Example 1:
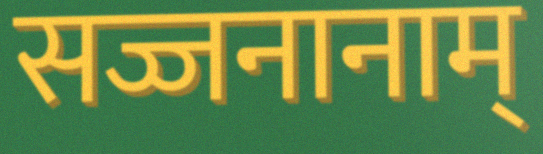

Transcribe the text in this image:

सज्जनानाम्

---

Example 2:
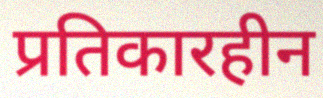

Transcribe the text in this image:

प्रतिकारहीन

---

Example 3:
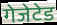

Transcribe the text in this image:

गेजेटेड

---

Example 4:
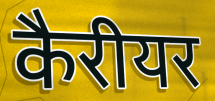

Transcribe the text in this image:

कैरीयर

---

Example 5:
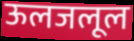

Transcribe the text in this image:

ऊलजलूल